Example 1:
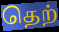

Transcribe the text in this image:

தெற்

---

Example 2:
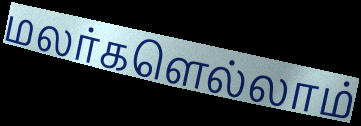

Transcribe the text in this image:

மலர்களெல்லாம்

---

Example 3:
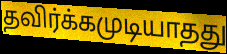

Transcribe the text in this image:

தவிர்க்கமுடியாதது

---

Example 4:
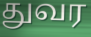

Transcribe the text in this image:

துவர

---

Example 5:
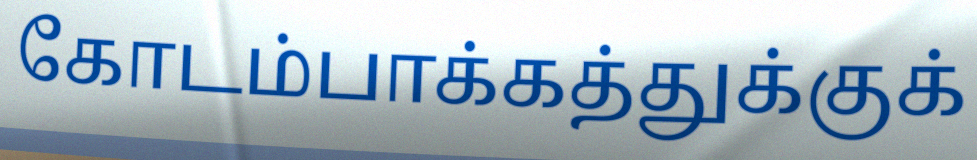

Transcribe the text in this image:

கோடம்பாக்கத்துக்குக்